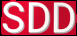
SDD